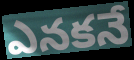
ఎనకనే